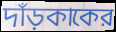
দাঁড়কাকের